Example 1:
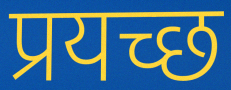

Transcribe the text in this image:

प्रयच्छ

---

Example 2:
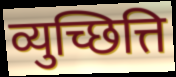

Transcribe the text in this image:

व्युच्छित्ति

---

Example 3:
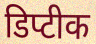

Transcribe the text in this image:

डिप्टीक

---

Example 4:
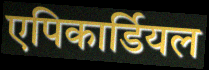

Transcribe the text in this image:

एपिकार्डियल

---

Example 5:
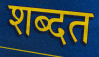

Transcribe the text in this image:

शब्दत